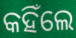
କହିଁଲେ